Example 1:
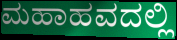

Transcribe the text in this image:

ಮಹಾಹವದಲ್ಲಿ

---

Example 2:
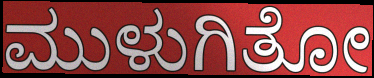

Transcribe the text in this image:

ಮುಳುಗಿತೋ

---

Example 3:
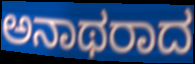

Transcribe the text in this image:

ಅನಾಥರಾದ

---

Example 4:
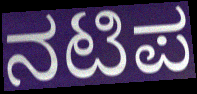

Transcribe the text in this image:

ನಟಿಪ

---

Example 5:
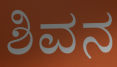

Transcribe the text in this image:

ಶಿವನ